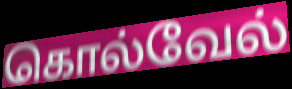
கொல்வேல்